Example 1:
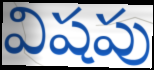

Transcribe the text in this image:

విషపు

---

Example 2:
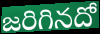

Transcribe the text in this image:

జరిగినదో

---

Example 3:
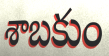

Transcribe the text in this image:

శాబకుం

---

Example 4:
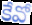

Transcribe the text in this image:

కేవో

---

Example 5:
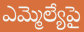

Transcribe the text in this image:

ఎమ్మెల్యేపై